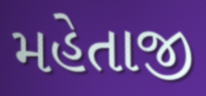
મહેતાજી